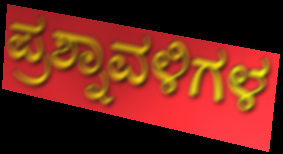
ಪ್ರಶ್ನಾವಳಿಗಳ